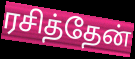
ரசித்தேன்